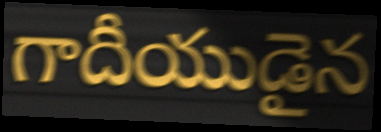
గాదీయుడైన